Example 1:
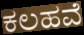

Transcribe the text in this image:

ಕಲಹವೆ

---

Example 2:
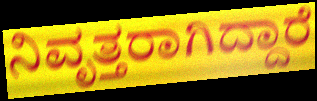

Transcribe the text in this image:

ನಿವೃತ್ತರಾಗಿದ್ದಾರೆ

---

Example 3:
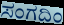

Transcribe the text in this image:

ಸಂಗದಿಂ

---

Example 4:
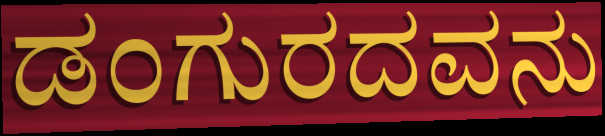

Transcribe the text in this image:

ಡಂಗುರದವನು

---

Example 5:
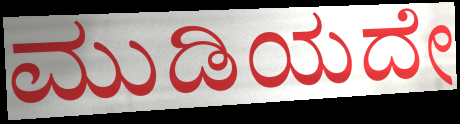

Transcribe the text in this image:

ಮುಡಿಯದೇ